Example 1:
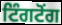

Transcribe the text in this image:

ਟਿੰਗਟੋਂਗ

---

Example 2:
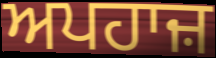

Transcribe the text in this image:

ਅਪਹਾਜ਼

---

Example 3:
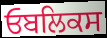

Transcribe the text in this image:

ਓਬਲਿਕਸ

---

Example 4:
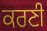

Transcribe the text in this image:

ਕਰਣੀ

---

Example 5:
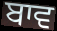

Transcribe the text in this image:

ਬਾਵ